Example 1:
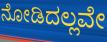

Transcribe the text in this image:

ನೋಡಿದಲ್ಲವೇ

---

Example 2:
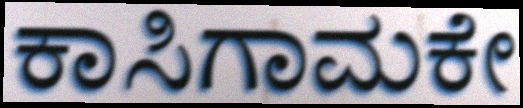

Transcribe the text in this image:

ಕಾಸಿಗಾಮಕೇ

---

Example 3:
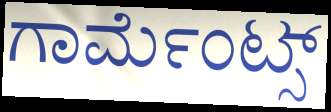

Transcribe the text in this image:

ಗಾರ್ಮೆಂಟ್ಸ್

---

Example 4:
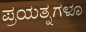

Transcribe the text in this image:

ಪ್ರಯತ್ನಗಳೂ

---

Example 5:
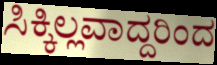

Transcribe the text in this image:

ಸಿಕ್ಕಿಲ್ಲವಾದ್ದರಿಂದ